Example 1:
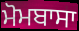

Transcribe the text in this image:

ਮੋਮਬਾਸਾ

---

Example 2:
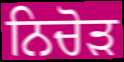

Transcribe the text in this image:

ਨਿਚੋਡ਼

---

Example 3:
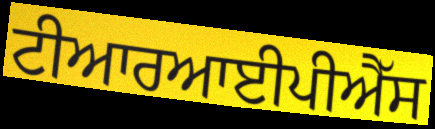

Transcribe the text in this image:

ਟੀਆਰਆਈਪੀਐੱਸ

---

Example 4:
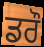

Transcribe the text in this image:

ਡਰੌ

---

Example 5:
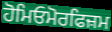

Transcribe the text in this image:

ਹੋਮਿਓਮੋਰਫਿਜ਼ਮ